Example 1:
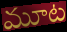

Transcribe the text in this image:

మూట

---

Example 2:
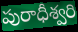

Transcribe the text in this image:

పురాధీశ్వరి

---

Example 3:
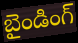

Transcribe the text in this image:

బైండింగ్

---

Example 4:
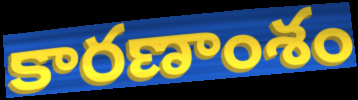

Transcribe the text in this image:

కారణాంశం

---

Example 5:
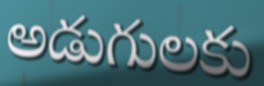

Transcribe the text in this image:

అడుగులకు